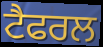
ਟੈਫਰਲ